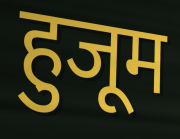
हुजूम